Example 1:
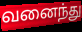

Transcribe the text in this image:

வனைந்து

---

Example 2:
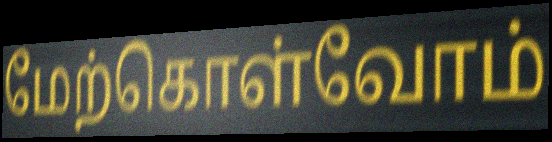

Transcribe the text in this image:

மேற்கொள்வோம்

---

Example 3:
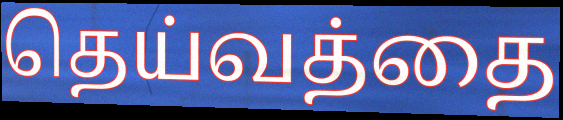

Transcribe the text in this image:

தெய்வத்தை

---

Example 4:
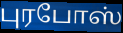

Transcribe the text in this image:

புரபோஸ்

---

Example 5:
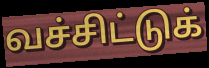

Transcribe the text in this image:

வச்சிட்டுக்